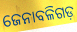
ଜେନାବଳିଗଡ଼